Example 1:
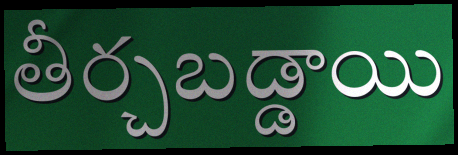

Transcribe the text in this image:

తీర్చబడ్డాయి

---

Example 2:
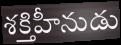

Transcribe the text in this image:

శక్తిహీనుడు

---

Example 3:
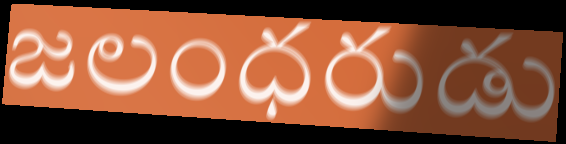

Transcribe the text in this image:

జలంధరుడు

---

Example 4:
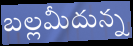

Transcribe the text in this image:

బల్లమీదున్న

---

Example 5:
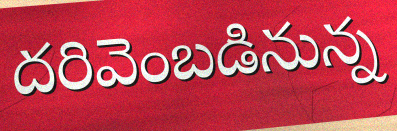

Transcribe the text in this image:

దరివెంబడినున్న